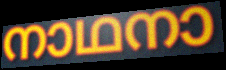
നാഥനാ